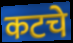
कटचे